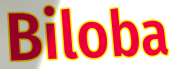
Biloba